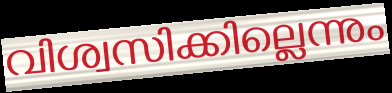
വിശ്വസിക്കില്ലെന്നും